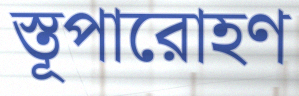
স্তূপারোহণ